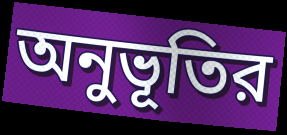
অনুভূতির